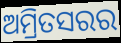
ଅମ୍ରିତସରର